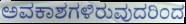
ಅವಕಾಶಗಳಿರುವುದರಿಂದ